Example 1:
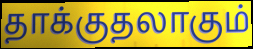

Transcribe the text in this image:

தாக்குதலாகும்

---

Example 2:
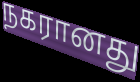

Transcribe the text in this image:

நகரானது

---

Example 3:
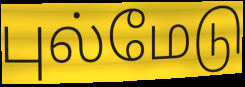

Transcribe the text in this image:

புல்மேடு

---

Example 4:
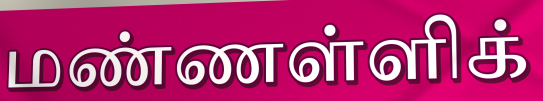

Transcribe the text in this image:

மண்ணள்ளிக்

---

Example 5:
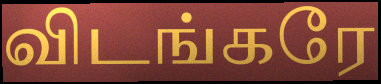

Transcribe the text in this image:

விடங்கரே